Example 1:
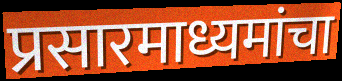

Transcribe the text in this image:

प्रसारमाध्यमांचा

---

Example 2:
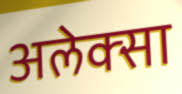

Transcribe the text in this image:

अलेक्‍सा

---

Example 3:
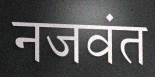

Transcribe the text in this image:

नजवंत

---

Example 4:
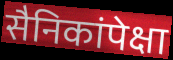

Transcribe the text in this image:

सैनिकांपेक्षा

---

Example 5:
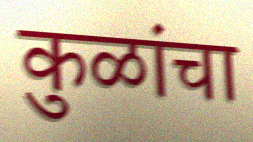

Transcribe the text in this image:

कुळांचा